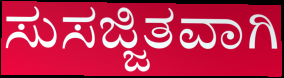
ಸುಸಜ್ಜಿತವಾಗಿ